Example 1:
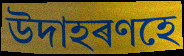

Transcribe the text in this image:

উদাহৰণহে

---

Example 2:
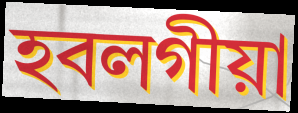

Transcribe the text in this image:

হবলগীয়া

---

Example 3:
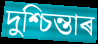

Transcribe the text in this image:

দুশ্চিন্তাৰ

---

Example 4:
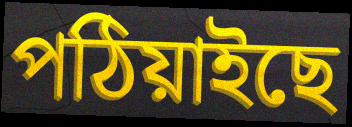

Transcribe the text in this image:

পঠিয়াইছে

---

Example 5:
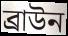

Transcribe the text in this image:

ব্ৰাউন